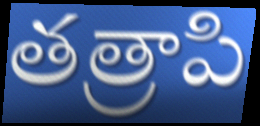
తత్రాపి